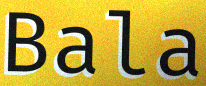
Bala